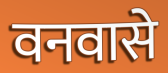
वनवासे